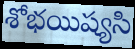
శోభయిష్యసి